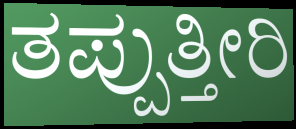
ತಪ್ಪುತ್ತೀರಿ